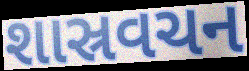
શાસ્રવચન